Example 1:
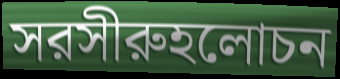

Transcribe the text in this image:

সরসীরুহলোচন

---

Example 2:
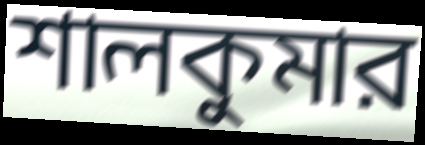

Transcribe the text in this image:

শালকুমার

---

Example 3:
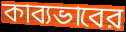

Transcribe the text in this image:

কাব্যভাবের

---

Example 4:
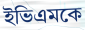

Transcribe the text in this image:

ইভিএমকে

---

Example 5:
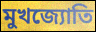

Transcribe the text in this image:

মুখজ্যোতি